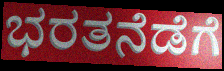
ಭರತನೆಡೆಗೆ